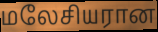
மலேசியரான